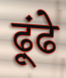
ढ़ूंढे